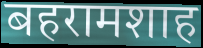
बहरामशाह